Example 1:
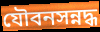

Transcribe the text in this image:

যৌবনসন্নদ্ধ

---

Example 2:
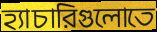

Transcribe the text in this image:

হ্যাচারিগুলোতে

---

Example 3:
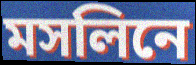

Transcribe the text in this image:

মসলিনে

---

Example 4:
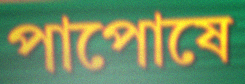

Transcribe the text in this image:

পাপোষে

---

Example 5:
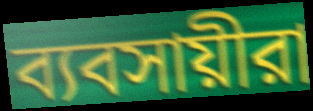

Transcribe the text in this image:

ব্যবসায়ীরা